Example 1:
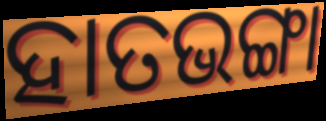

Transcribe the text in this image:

ହାତଭଙ୍ଗା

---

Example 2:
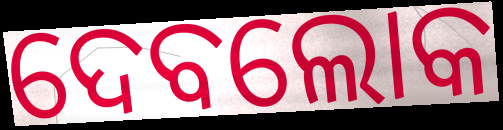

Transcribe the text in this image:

ଦେବଲୋକ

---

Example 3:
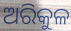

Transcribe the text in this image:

ଅରିକୁଳ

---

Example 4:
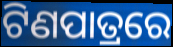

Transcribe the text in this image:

ଟିଣପାତ୍ରରେ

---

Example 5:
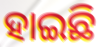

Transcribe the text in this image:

ହାଇଛି